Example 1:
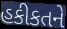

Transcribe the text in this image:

હકીકતને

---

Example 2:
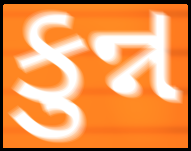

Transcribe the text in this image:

કુન્ન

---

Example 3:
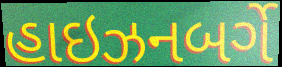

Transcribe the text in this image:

હાઇઝનબર્ગે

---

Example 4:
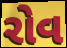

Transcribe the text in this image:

રોવ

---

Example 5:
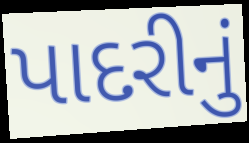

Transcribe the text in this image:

પાદરીનું